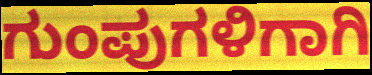
ಗುಂಪುಗಳಿಗಾಗಿ